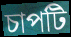
চাপটি